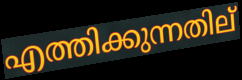
എത്തിക്കുന്നതില്